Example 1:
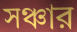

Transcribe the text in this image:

সঞ্চার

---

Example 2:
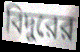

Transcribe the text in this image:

বিদুরের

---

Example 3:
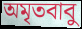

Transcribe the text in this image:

অমৃতবাবু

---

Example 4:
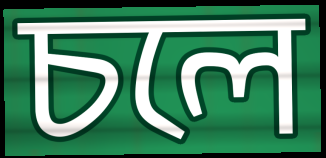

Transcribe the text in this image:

চলে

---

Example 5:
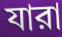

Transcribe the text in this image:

যারা